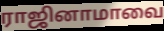
ராஜினாமாவை